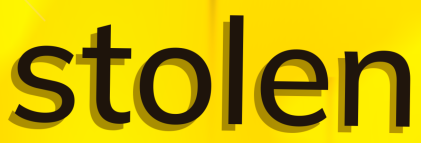
stolen